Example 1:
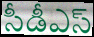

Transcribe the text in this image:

సీడీఎస్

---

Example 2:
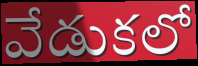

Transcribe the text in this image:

వేడుకలో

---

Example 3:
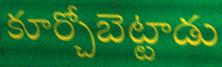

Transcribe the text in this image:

కూర్చోబెట్టాడు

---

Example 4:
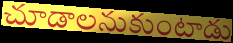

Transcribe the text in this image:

చూడాలనుకుంటాడు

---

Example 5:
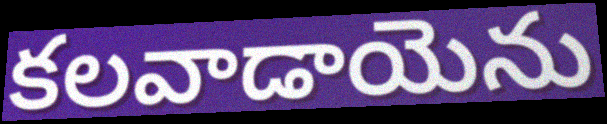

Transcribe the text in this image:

కలవాడాయెను